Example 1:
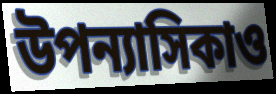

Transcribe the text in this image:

উপন্যাসিকাও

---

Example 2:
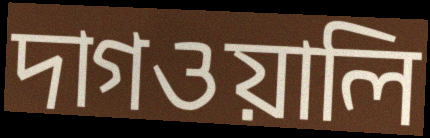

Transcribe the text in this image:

দাগওয়ালি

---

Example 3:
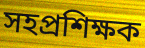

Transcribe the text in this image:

সহপ্রশিক্ষক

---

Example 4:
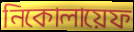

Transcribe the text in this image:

নিকোলায়েফ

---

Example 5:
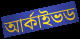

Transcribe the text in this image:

আর্কাইভড